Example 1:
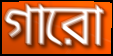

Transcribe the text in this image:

গারো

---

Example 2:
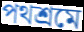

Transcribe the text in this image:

পথশ্রমে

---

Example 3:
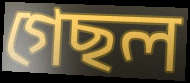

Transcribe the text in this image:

গেছল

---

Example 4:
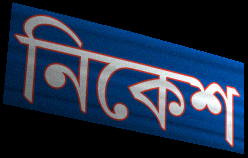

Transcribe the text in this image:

নিকেশ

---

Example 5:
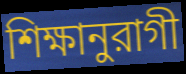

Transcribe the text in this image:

শিক্ষানুরাগী